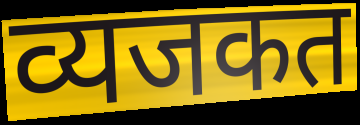
व्यजकत